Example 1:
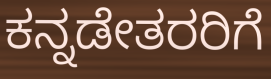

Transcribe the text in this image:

ಕನ್ನಡೇತರರಿಗೆ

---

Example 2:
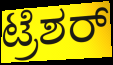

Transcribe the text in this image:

ಟ್ರೆಶರ್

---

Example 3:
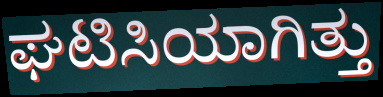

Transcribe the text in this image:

ಘಟಿಸಿಯಾಗಿತ್ತು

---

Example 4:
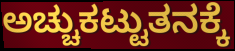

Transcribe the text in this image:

ಅಚ್ಚುಕಟ್ಟುತನಕ್ಕೆ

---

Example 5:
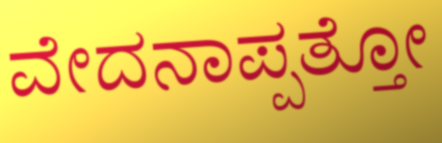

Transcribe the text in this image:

ವೇದನಾಪ್ಪತ್ತೋ